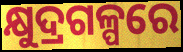
କ୍ଷୁଦ୍ରଗଳ୍ପରେ